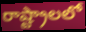
రాష్ట్రాలలో